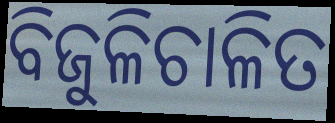
ବିଜୁଳିଚାଳିତ